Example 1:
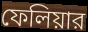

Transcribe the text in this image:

ফেলিয়ার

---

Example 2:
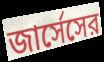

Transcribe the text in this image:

জার্সেসের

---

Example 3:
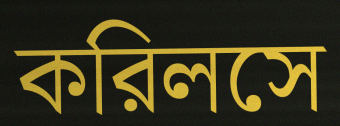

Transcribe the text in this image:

করিলসে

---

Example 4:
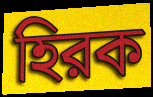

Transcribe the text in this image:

হিরক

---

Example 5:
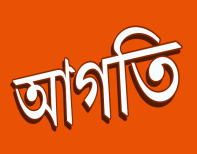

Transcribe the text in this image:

আগতি